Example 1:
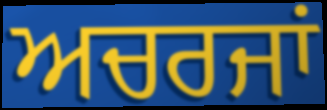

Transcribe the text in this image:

ਅਚਰਜਾਂ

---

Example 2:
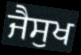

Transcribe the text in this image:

ਜੈਸੁਖ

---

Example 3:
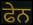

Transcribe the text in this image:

ਫੇਨ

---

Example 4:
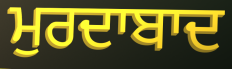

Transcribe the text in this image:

ਮੁਰਦਾਬਾਦ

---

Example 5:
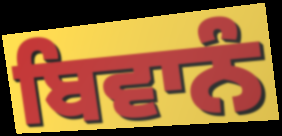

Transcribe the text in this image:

ਬਿਵਾਨੰ